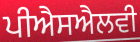
ਪੀਐਸਐਲਵੀ